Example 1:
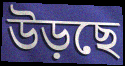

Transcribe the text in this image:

উড়ছে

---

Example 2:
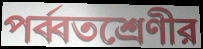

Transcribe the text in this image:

পর্ব্বতশ্রেণীর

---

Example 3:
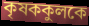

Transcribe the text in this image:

কৃষককুলকে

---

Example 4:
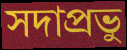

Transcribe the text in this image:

সদাপ্রভু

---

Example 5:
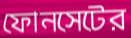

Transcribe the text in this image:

ফোনসেটের